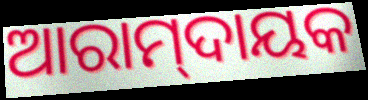
ଆରାମ୍‌ଦାୟକ